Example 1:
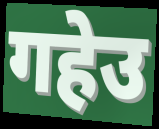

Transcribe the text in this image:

गहेउ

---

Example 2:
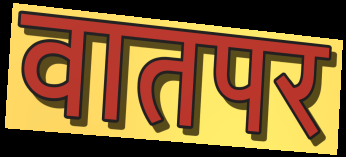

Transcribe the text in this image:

वातपर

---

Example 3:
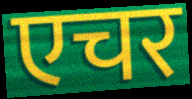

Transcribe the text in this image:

एचर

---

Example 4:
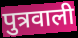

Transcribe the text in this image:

पुत्रवाली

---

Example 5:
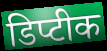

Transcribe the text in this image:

डिप्टीक